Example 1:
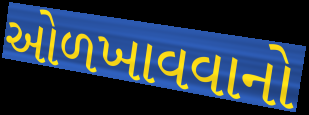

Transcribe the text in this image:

ઓળખાવવાનો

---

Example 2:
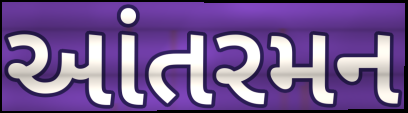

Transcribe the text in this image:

આંતરમન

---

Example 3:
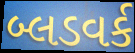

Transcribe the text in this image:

બ્લડવર્ક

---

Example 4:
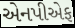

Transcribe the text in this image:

એનપીએફ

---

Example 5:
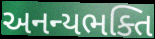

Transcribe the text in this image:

અનન્યભક્તિ